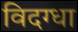
विदग्धा